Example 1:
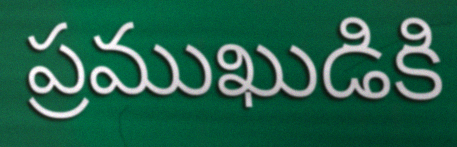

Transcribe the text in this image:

ప్రముఖుడికి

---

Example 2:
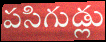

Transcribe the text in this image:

పసిగుడ్లు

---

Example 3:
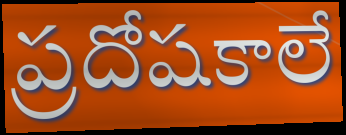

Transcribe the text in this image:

ప్రదోషకాలే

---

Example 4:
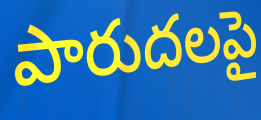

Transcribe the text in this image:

పారుదలపై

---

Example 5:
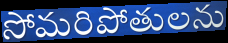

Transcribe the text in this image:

సోమరిపోతులను